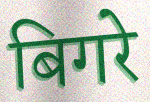
बिगरे